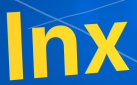
lnx